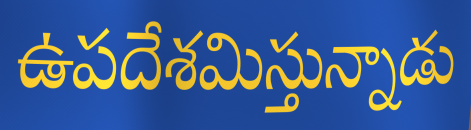
ఉపదేశమిస్తున్నాడు